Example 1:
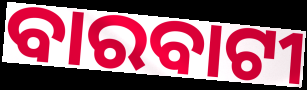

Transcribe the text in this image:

ବାରବାଟୀ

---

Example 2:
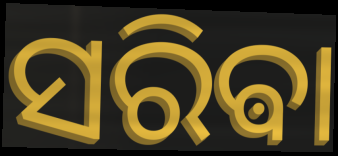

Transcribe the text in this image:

ସରିଵା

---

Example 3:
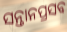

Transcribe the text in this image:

ସନ୍ତାନପ୍ରସବ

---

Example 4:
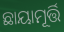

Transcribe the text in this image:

ଛାୟାମୂର୍ତ୍ତି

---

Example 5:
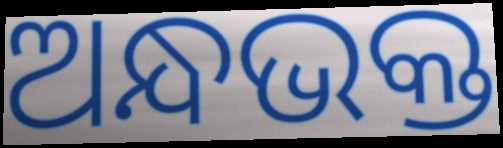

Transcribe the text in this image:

ଅନ୍ଧଭକ୍ତ